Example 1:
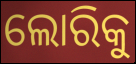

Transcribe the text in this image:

ଲୋରିକୁ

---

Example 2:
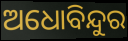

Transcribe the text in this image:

ଅଧୋବିନ୍ଦୁର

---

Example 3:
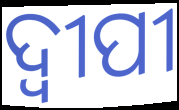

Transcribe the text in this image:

ଦ୍ଵୀପୀ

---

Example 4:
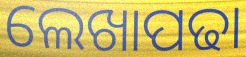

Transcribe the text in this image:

ଲେଖାପଢା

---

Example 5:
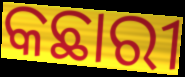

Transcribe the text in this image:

କଛାରୀ